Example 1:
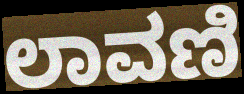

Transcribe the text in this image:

ಲಾವಣಿ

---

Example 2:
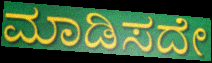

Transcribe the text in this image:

ಮಾಡಿಸದೇ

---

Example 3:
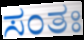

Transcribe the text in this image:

ಸಂತಃ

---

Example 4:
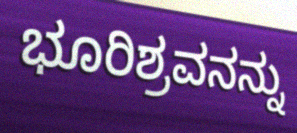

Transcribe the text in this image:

ಭೂರಿಶ್ರವನನ್ನು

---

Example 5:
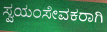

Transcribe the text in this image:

ಸ್ವಯಂಸೇವಕರಾಗಿ